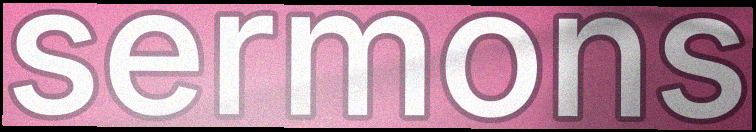
sermons